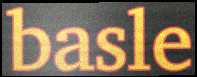
basle